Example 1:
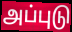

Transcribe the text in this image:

அப்புடு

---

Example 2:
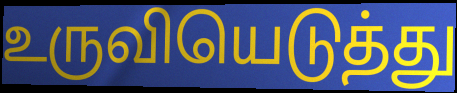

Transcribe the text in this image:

உருவியெடுத்து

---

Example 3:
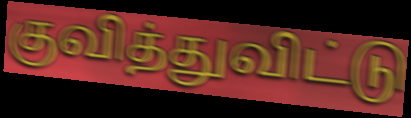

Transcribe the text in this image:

குவித்துவிட்டு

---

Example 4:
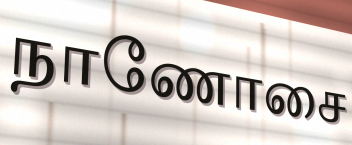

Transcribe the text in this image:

நாணோசை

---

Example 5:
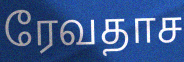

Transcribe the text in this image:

ரேவதாச